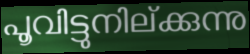
പൂവിട്ടുനില്ക്കുന്നു